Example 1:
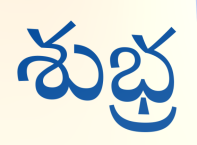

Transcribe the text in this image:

శుభ్ర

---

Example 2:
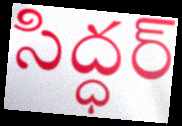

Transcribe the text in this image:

సిద్ధర్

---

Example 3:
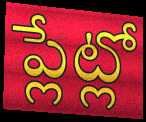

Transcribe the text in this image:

ప్లేట్లో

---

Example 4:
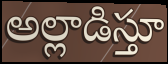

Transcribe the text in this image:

అల్లాడిస్తూ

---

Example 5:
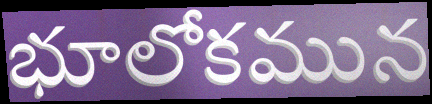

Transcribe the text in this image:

భూలోకమున